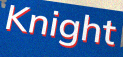
Knight